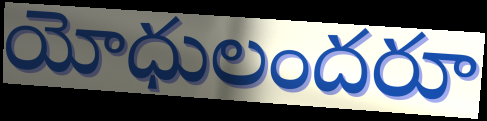
యోధులందరూ